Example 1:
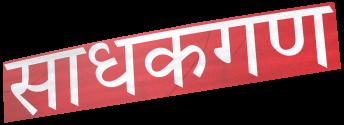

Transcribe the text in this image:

साधकगण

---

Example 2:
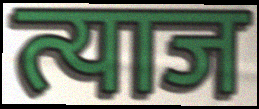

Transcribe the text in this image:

त्याज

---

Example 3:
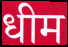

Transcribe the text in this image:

धीम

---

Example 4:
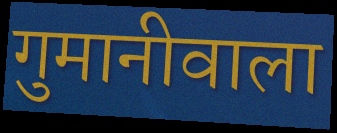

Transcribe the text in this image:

गुमानीवाला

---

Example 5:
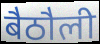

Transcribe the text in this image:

बैठौली